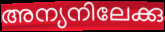
അന്യനിലേക്കു